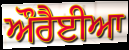
ਔਰੈਈਆ